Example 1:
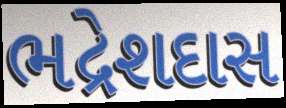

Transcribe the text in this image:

ભદ્રેશદાસ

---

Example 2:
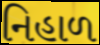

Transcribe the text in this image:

નિહાળ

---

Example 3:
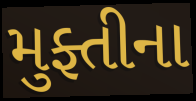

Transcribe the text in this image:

મુફ્તીના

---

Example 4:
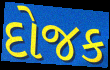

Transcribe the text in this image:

દોજક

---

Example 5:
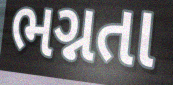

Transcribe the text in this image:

ભગ્નતા